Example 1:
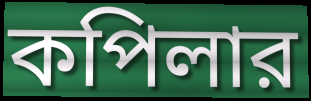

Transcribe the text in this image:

কপিলার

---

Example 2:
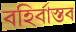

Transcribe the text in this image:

বহির্বাস্তব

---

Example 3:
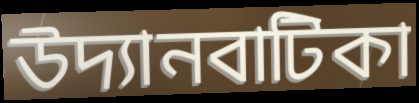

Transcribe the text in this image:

উদ্যানবাটিকা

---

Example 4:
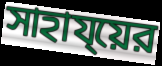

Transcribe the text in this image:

সাহায্য়ের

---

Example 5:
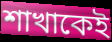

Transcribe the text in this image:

শাখাকেই